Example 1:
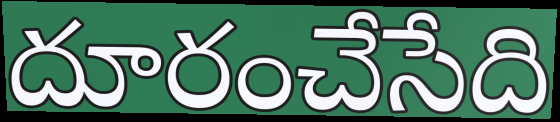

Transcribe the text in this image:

దూరంచేసేది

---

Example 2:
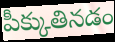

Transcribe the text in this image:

పీక్కుతినడం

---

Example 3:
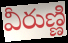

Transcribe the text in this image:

వీరుణ్ణి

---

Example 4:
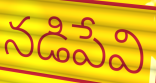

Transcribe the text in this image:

నడిపేవి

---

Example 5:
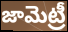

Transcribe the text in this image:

జామెట్రీ